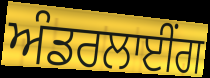
ਅੰਡਰਲਾਈੰਗ